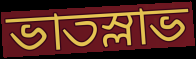
ভাতস্লাভ